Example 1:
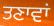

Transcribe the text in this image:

ਤਣਾਵਾਂ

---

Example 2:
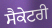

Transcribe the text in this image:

ਸੈਕੇਟਰੀ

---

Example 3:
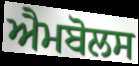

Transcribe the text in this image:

ਐਮਬੋਲਸ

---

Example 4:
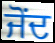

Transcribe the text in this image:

ਜੋਂਦ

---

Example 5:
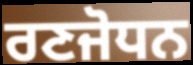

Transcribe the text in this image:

ਰਣਜੋਧਨ